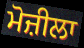
ਮੋਜ਼ੀਲਾ